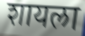
शायला